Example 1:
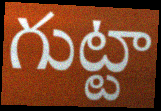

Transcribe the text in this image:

గుట్టా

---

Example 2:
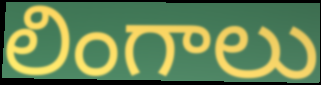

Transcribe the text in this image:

లింగాలు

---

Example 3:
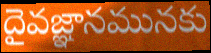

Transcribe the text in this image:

దైవజ్ఞానమునకు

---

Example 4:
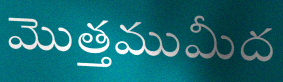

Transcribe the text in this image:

మొత్తముమీద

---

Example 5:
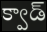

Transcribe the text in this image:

క్వాడ్